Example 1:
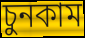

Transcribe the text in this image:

চুনকাম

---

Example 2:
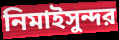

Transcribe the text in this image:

নিমাইসুন্দর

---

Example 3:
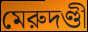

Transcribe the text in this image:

মেরুদণ্ডী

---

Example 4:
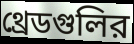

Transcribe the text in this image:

থ্রেডগুলির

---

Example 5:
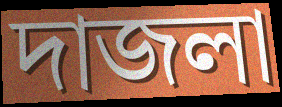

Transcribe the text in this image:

দাজলা